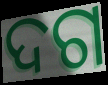
ଦଗ